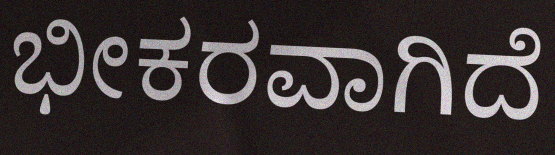
ಭೀಕರವಾಗಿದೆ